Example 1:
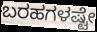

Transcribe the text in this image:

ಬರಹಗಳಷ್ಟೇ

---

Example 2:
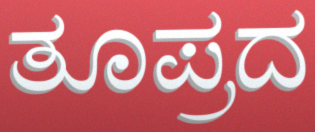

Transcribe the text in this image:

ತೂಪ್ರದ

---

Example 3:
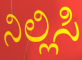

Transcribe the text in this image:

ನಿಲ್ಲಿಸಿ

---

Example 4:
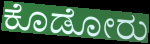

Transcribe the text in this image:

ಕೊಡೋರು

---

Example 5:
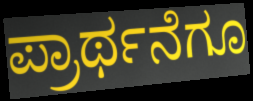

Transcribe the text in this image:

ಪ್ರಾರ್ಥನೆಗೂ